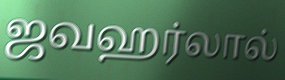
ஜவஹர்லால்